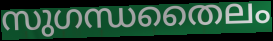
സുഗന്ധതൈലം